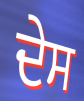
ਦੇਸ